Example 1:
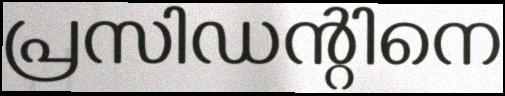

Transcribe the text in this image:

പ്രസിഡന്റിനെ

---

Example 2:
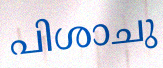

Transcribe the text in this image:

പിശാചു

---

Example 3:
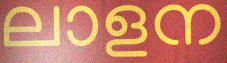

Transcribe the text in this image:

ലാളന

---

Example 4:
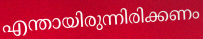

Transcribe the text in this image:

എന്തായിരുന്നിരിക്കണം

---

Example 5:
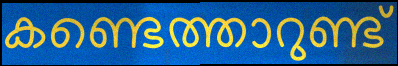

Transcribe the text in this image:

കണ്ടെത്താറുണ്ട്